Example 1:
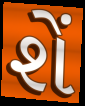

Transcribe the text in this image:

શેં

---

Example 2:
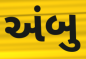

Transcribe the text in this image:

અંબુ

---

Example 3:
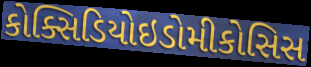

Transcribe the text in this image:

કોક્સિડિયોઇડોમીકોસિસ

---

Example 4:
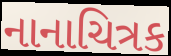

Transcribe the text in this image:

નાનાચિત્રક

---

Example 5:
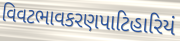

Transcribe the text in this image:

વિવટભાવકરણપાટિહારિયં